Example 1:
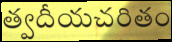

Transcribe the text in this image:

త్వదీయచరితం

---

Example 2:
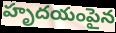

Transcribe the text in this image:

హృదయంపైన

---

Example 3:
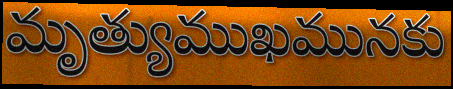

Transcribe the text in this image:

మృత్యుముఖమునకు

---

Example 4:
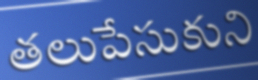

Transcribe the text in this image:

తలుపేసుకుని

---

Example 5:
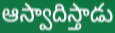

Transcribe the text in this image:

ఆస్వాదిస్తాడు